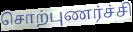
சொற்புணர்ச்சி